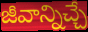
జీవాన్నిచ్చే